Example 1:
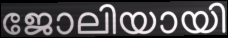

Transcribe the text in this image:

ജോലിയായി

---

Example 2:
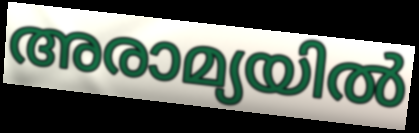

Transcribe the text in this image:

അരാമ്യയിൽ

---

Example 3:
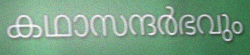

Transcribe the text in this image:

കഥാസന്ദർഭവും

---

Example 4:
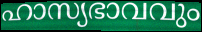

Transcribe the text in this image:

ഹാസ്യഭാവവും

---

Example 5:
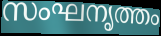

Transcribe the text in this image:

സംഘനൃത്തം